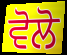
ਵੋਲੋ